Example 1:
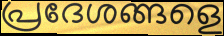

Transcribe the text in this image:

പ്രദേശങ്ങളെ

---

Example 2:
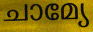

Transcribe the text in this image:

ചാമ്യേ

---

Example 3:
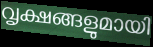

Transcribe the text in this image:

വൃക്ഷങ്ങളുമായി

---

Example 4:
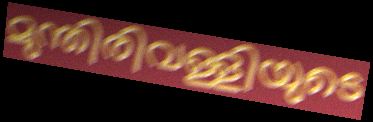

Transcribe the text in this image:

മുന്തിരിവള്ളിയുടെ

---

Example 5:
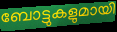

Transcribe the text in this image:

ബോട്ടുകളുമായി